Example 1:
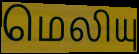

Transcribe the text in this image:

மெலியு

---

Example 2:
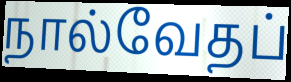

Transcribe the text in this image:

நால்வேதப்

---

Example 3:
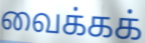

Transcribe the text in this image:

வைக்கக்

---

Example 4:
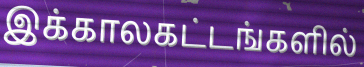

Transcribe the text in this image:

இக்காலகட்டங்களில்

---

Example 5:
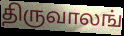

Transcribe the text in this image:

திருவாலங்